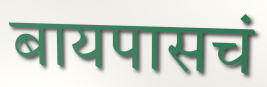
बायपासचं